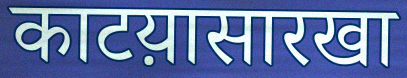
काटय़ासारखा